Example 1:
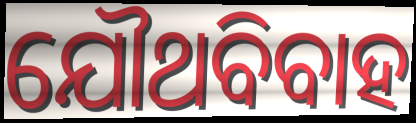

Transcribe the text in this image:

ଯୌଥବିବାହ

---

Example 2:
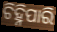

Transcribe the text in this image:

ଚିହ୍ନିପାରି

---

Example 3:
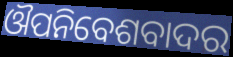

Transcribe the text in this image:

ଔପନିବେଶବାଦର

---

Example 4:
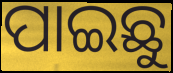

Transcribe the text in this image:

ପାଇଛୁ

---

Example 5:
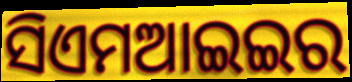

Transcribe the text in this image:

ସିଏମଆଇଇର